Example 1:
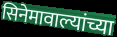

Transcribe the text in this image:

सिनेमावाल्यांच्या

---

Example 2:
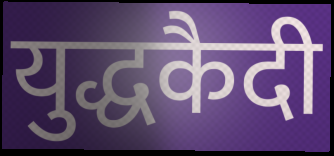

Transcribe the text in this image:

युद्धकैदी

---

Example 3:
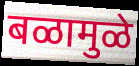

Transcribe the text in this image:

बळामुळे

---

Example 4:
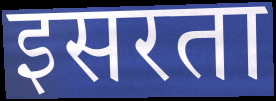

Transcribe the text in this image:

इसरता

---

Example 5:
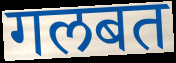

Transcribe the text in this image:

गलबत